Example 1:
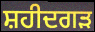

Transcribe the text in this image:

ਸ਼ਹੀਦਗੜ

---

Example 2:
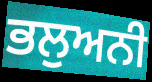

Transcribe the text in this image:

ਭਲੁਅਨੀ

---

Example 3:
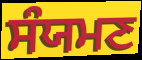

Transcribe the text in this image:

ਸੰਯਮਣ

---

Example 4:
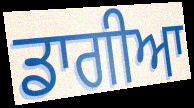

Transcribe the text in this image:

ਡਾਗੀਆ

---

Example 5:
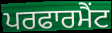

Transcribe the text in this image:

ਪਰਫਾਰਮੈਂਟ